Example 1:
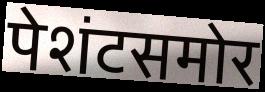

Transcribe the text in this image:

पेशंटसमोर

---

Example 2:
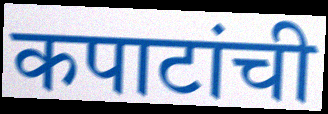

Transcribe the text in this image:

कपाटांची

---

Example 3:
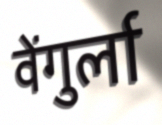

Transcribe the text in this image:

वेंगुर्ला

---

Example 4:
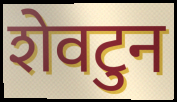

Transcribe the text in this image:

शेवटुन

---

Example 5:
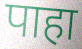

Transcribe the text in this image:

पाहा